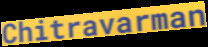
Chitravarman